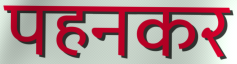
पहनकर